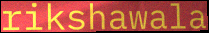
rikshawala